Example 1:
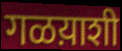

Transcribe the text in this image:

गळय़ाशी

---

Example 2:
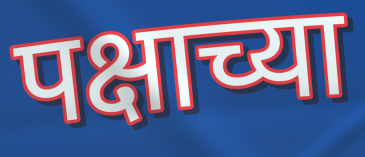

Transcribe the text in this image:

पक्षाच्या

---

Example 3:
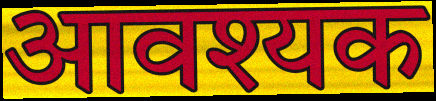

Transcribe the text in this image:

आवश्यक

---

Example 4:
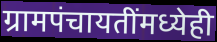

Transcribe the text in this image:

ग्रामपंचायतींमध्येही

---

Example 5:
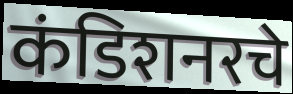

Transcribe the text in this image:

कंडिशनरचे